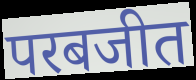
परबजीत